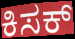
ಕಿಸಕ್